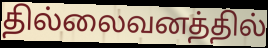
தில்லைவனத்தில்